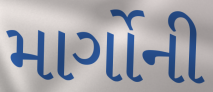
માર્ગોની